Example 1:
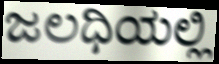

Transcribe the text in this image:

ಜಲಧಿಯಲ್ಲಿ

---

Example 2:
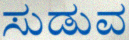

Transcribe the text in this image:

ಸುಡುವ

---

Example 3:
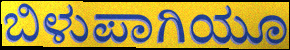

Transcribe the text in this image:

ಬಿಳುಪಾಗಿಯೂ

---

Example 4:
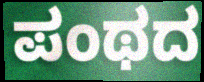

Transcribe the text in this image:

ಪಂಥದ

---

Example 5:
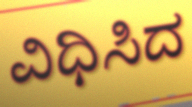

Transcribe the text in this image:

ವಿಧಿಸಿದ